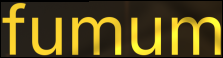
fumum